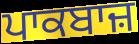
ਪਾਕਬਾਜ਼